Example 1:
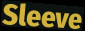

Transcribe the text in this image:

Sleeve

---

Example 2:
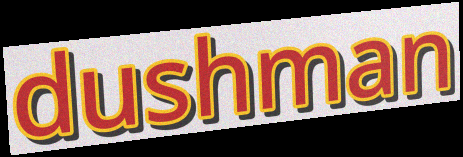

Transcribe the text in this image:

dushman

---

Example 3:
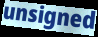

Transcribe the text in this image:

unsigned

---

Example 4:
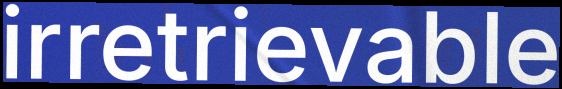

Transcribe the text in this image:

irretrievable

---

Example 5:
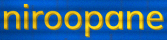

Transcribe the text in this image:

niroopane